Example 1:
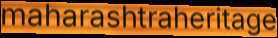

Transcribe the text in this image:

maharashtraheritage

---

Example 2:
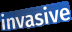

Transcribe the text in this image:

invasive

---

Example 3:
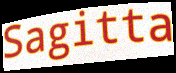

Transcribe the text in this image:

Sagitta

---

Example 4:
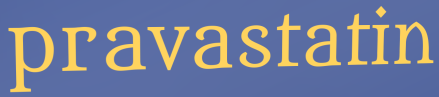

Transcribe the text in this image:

pravastatin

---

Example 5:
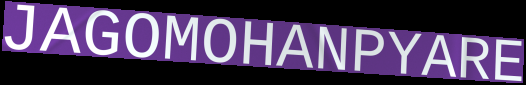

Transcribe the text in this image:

JAGOMOHANPYARE